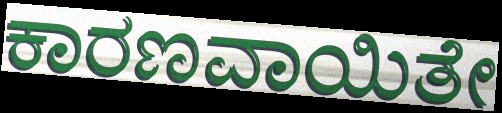
ಕಾರಣವಾಯಿತೇ